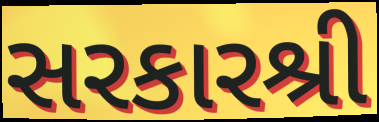
સરકારશ્રી